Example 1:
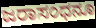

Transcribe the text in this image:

ಜರಾಸಂಧನೂ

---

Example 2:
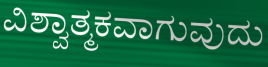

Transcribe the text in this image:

ವಿಶ್ವಾತ್ಮಕವಾಗುವುದು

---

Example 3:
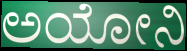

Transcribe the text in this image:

ಅಯೋನಿ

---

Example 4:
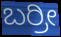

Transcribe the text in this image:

ಬರ್ರೀ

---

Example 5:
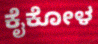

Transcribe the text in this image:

ಕೈಕೋಳ